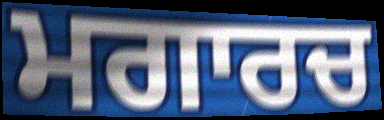
ਮਗਾਰਚ